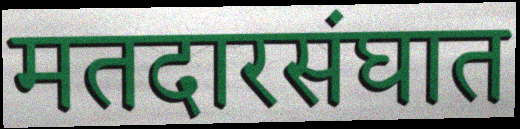
मतदारसंघात